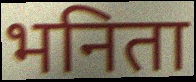
भनिता